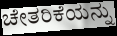
ಚೇತರಿಕೆಯನ್ನು